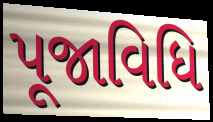
પૂજાવિધિ